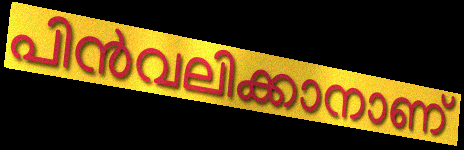
പിൻവലിക്കാനാണ്